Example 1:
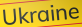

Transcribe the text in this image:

Ukraine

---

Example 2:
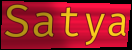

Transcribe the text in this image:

Satya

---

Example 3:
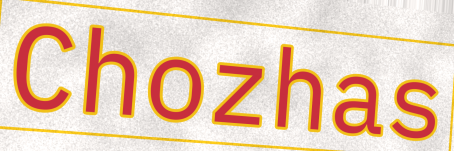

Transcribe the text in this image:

Chozhas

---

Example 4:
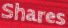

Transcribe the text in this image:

Shares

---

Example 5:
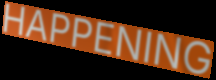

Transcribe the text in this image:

HAPPENING